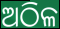
ଅଠିଳ